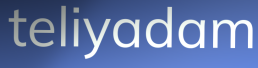
teliyadam